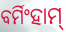
ବର୍ମିଂହାମ୍